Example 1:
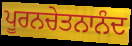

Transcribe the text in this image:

ਪੂਰਨਚੇਤਨਾਨੰਦ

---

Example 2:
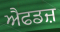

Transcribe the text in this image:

ਐਫਡਜ਼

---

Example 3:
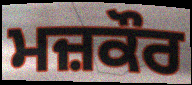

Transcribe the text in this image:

ਮਜ਼ਕੌਰ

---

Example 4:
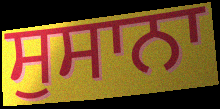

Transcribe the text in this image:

ਸੁਸਾਨਾ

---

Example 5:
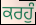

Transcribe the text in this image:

ਕਰਹੁੰ